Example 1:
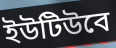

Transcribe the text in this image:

ইউটিউবে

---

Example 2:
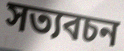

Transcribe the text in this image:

সত্যবচন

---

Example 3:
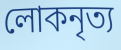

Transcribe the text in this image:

লোকনৃত্য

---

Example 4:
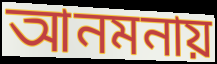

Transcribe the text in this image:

আনমনায়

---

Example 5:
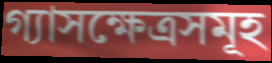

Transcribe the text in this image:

গ্যাসক্ষেত্রসমূহ